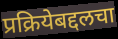
प्रक्रियेबद्दलचा